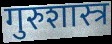
गुरुशास्त्र